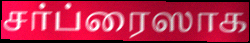
சர்ப்ரைஸாக